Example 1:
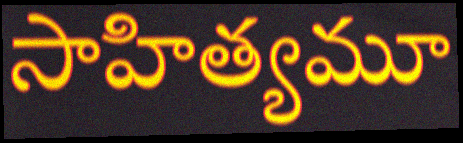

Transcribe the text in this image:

సాహిత్యమూ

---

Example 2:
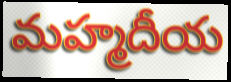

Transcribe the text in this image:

మహ్మదీయ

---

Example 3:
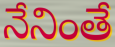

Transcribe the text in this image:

నేనింతే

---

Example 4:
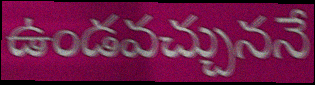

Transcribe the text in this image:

ఉండవచ్చుననే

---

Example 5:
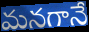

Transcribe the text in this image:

మనగానే